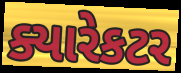
ક્યારેકટર